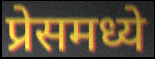
प्रेसमध्ये